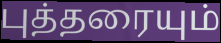
புத்தரையும்